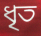
ধৃত